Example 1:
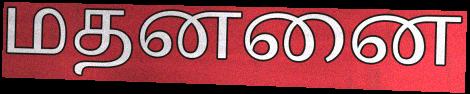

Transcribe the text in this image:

மதனனை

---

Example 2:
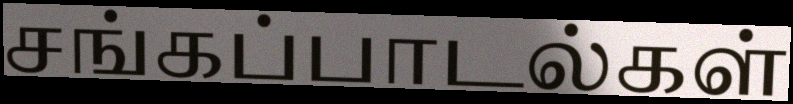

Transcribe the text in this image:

சங்கப்பாடல்கள்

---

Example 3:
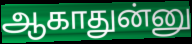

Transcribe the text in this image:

ஆகாதுன்னு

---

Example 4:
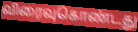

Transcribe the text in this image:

விரைவுகொண்டது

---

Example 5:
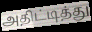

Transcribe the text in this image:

அதிட்டித்து